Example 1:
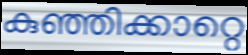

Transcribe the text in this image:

കുഞ്ഞിക്കാറ്റെ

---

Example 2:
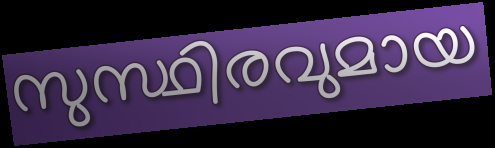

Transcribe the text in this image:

സുസ്ഥിരവുമായ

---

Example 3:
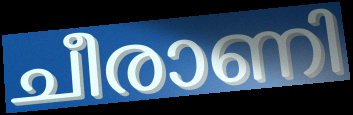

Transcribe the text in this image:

ചീരാണി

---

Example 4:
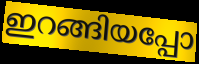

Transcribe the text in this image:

ഇറങ്ങിയപ്പോ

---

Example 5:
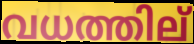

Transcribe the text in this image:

വധത്തില്